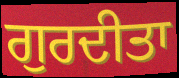
ਗੁਰਦੀਤਾ